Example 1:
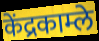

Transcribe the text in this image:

केंद्रकाम्ले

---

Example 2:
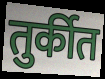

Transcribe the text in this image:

तुर्कीत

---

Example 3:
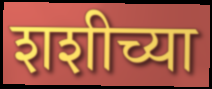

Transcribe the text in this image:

शशीच्या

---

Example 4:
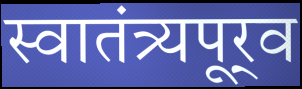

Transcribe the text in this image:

स्वातंत्र्यपूर्व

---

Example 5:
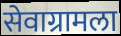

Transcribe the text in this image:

सेवाग्रामला